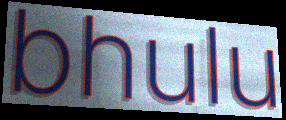
bhulu